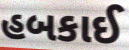
હબકાઈ